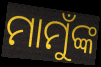
ମାମୁଁଙ୍କ